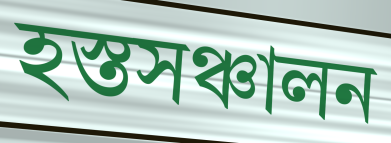
হস্তসঞ্চালন